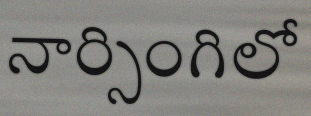
నార్సింగిలో